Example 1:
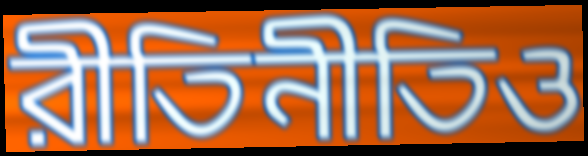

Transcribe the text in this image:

রীতিনীতিও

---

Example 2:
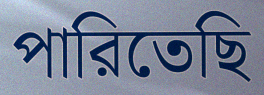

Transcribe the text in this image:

পারিতেছি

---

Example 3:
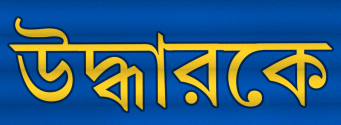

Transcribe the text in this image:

উদ্ধারকে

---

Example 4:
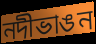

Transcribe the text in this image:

নদীভাঙন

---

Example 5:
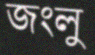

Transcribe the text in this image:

জংলু